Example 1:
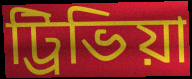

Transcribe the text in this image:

ট্রিভিয়া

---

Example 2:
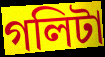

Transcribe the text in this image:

গলিটা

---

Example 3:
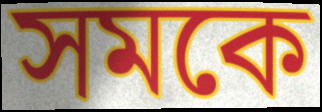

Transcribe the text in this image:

সমকে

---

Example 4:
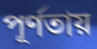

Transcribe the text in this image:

পূর্ণতায়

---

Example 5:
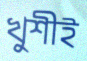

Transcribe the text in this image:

খুশীই